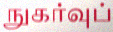
நுகர்வுப்